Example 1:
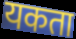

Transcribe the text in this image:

यकता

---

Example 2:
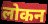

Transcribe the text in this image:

लोकन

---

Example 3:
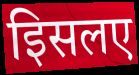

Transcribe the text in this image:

इिसलए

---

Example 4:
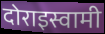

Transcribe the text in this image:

दोराइस्वामी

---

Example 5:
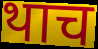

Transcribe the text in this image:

थाच